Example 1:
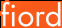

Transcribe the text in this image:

fiord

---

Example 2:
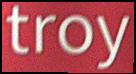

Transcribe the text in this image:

troy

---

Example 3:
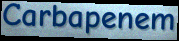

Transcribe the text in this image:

Carbapenem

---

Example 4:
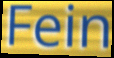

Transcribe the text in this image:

Fein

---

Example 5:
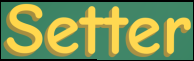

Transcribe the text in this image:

Setter